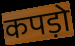
कपड़ो